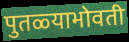
पुतळ्याभोवती